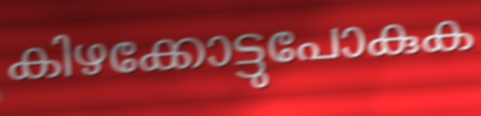
കിഴക്കോട്ടുപോകുക